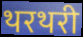
थरथरी